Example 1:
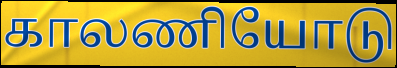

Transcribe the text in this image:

காலணியோடு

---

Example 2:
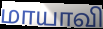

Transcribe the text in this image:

மாயாவி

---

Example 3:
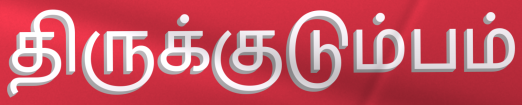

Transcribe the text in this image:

திருக்குடும்பம்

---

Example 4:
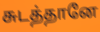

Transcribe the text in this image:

சுடத்தானே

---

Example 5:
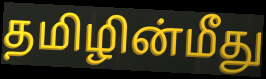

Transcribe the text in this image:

தமிழின்மீது